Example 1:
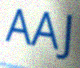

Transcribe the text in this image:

AAJ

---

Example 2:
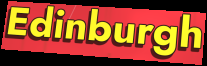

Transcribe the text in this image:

Edinburgh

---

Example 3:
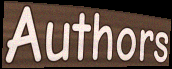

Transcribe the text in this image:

Authors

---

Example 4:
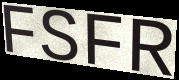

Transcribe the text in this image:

FSFR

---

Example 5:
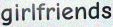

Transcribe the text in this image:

girlfriends